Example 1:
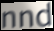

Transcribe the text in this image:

nnd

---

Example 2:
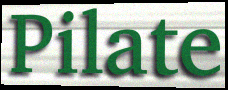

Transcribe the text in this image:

Pilate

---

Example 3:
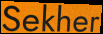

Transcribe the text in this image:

Sekher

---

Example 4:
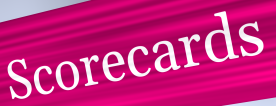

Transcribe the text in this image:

Scorecards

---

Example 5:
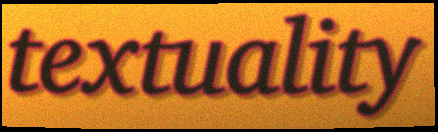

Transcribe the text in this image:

textuality